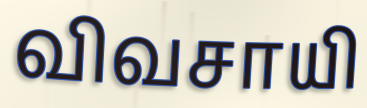
விவசாயி